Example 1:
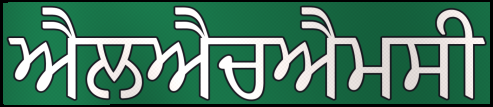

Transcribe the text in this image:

ਐਲਐਚਐਮਸੀ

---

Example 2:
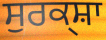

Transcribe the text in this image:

ਸੁਰਕ੍ਸ਼ਾ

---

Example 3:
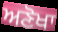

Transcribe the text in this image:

ਅਣੋਖਾ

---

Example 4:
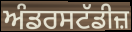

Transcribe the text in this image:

ਅੰਡਰਸਟੱਡੀਜ਼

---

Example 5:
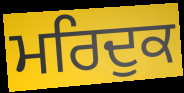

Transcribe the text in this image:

ਮਰਿਦੁਕ